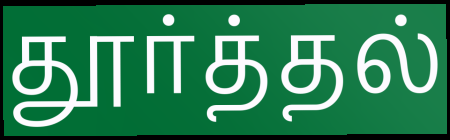
தூர்த்தல்